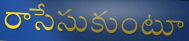
రాసేసుకుంటూ